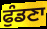
ਫੁੰਡਣਾ